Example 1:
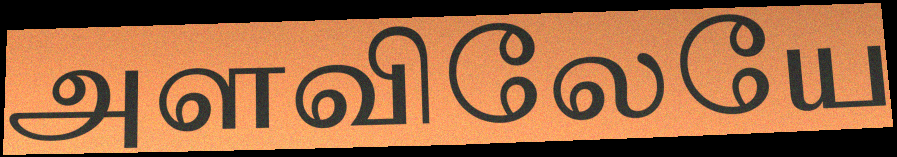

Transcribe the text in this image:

அளவிலேயே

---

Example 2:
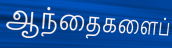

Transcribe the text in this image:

ஆந்தைகளைப்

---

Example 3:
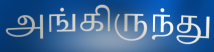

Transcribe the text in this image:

அங்கிருந்து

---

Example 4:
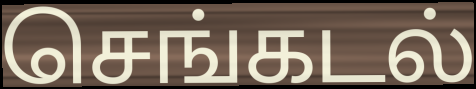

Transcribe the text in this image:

செங்கடல்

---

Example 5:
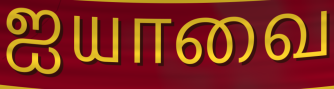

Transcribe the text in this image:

ஐயாவை